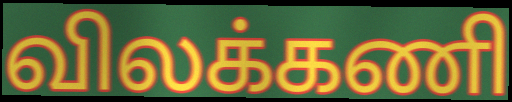
விலக்கணி